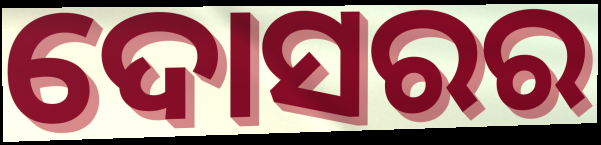
ଦୋସରର